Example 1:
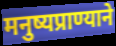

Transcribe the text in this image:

मनुष्यप्राण्याने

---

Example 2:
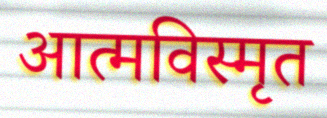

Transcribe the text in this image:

आत्मविस्मृत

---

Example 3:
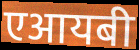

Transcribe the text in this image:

एआयबी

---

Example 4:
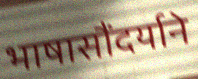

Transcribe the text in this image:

भाषासौंदर्याने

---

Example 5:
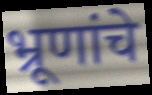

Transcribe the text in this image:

भ्रूणांचे